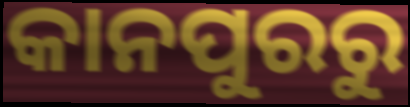
କାନପୁରରୁ